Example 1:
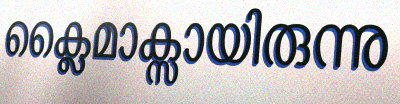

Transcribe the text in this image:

ക്ലൈമാക്സായിരുന്നു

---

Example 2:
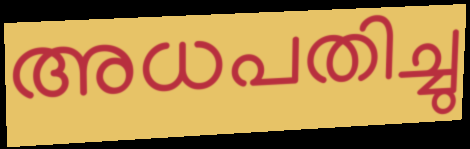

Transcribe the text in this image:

അധപതിച്ചു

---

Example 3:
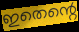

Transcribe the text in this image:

ഇതെന്റെ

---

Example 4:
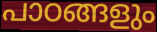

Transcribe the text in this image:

പാഠങ്ങളും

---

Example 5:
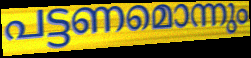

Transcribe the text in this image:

പട്ടണമൊന്നും